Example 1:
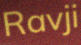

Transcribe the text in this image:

Ravji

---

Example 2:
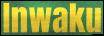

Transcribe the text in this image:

Inwaku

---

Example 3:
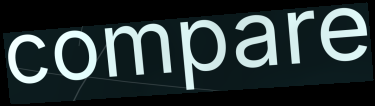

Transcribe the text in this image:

compare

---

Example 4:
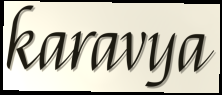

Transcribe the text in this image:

karavya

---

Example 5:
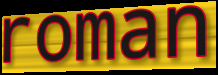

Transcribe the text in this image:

roman